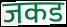
जकड